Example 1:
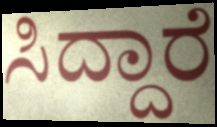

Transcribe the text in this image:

ಸಿದ್ದಾರೆ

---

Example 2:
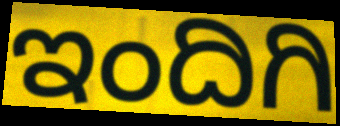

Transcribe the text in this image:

ಇಂದಿಗಿ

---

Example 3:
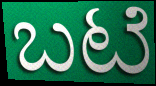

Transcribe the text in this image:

ಬಟೆ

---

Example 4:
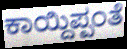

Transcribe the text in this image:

ಕಾಯ್ದಿಪ್ಪಂತೆ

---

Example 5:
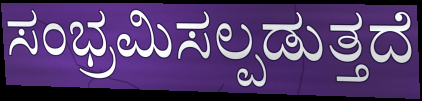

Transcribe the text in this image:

ಸಂಭ್ರಮಿಸಲ್ಪಡುತ್ತದೆ